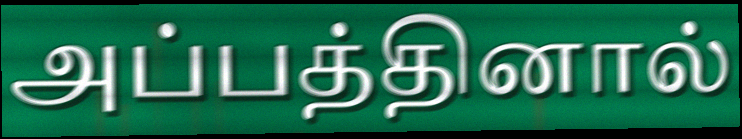
அப்பத்தினால்